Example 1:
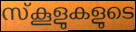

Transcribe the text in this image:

സ്‌കൂളുകളുടെ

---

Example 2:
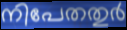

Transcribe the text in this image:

നിപേതതുർ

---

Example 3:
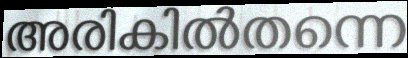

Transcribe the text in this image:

അരികിൽതന്നെ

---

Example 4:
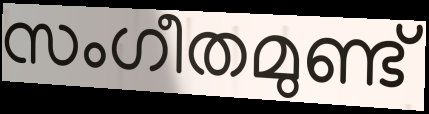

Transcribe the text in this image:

സംഗീതമുണ്ട്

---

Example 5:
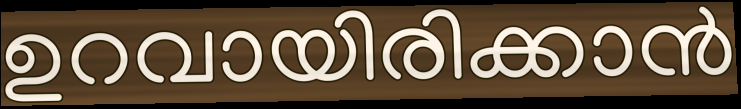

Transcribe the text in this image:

ഉറവായിരിക്കാൻ